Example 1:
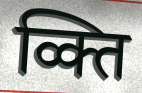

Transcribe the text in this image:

व्क्ति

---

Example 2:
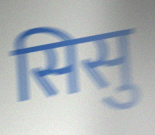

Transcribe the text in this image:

सिसु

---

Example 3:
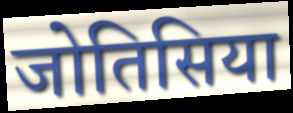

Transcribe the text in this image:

जोतिसिया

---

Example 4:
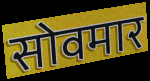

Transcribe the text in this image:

सोवमार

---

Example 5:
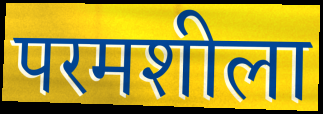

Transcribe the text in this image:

परमशीला